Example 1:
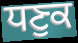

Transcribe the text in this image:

ਧਣੁਕ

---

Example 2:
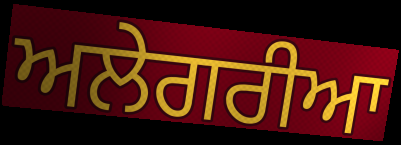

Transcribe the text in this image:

ਅਲੇਗਰੀਆ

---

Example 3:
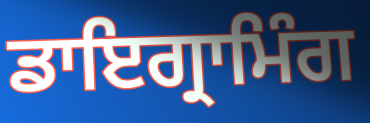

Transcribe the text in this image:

ਡਾਇਗ੍ਰਾਮਿੰਗ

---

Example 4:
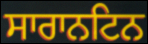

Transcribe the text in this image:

ਸਾਰਾਨਟਿਨ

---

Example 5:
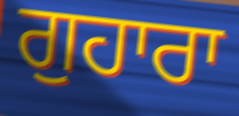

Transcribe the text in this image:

ਗੁਹਾਰਾ